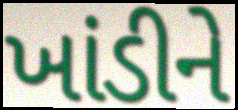
ખાંડીને